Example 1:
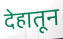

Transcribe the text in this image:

देहातून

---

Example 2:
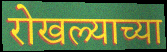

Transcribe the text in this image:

रोखल्याच्या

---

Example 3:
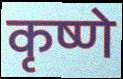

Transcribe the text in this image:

कृष्णे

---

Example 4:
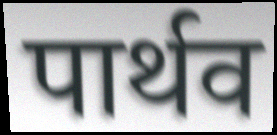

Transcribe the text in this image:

पार्थव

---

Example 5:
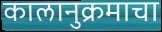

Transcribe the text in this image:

कालानुक्रमाचा